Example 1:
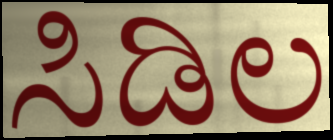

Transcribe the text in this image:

ಸಿಡಿಲ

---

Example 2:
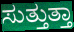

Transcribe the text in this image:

ಸುತ್ತುತ್ತಾ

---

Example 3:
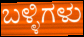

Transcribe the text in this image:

ಬಳ್ಳಿಗಳು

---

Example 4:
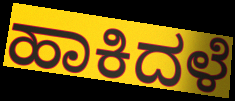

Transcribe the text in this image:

ಹಾಕಿದಳೆ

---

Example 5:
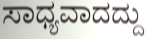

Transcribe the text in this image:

ಸಾಧ್ಯವಾದದ್ದು